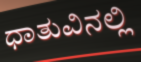
ಧಾತುವಿನಲ್ಲಿ